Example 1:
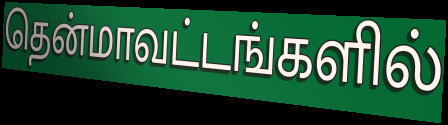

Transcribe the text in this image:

தென்மாவட்டங்களில்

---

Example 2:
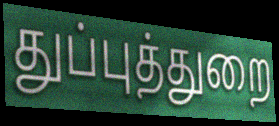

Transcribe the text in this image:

துப்புத்துறை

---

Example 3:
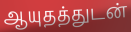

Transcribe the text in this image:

ஆயுதத்துடன்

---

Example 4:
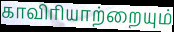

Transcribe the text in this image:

காவிரியாற்றையும்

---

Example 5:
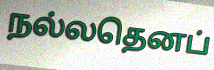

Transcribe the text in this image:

நல்லதெனப்